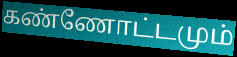
கண்ணோட்டமும்